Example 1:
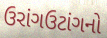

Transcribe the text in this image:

ઉરાંગઉટાંગનો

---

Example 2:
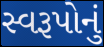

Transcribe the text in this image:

સ્વરૂપોનું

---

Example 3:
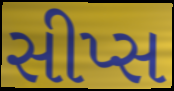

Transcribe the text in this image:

સીપ્સ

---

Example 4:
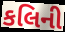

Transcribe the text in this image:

કલિની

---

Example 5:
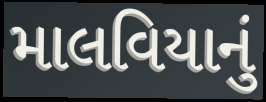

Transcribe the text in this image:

માલવિયાનું